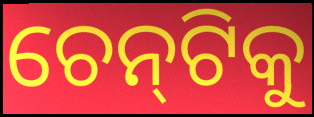
ଚେନ୍‌ଟିକୁ